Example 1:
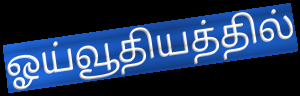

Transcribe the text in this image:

ஓய்வூதியத்தில்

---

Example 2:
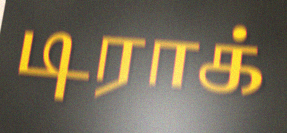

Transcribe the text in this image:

டிராக்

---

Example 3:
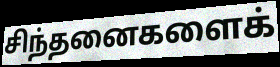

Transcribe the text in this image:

சிந்தனைகளைக்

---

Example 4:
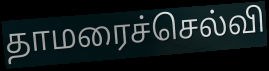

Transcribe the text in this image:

தாமரைச்செல்வி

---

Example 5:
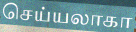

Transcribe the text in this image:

செய்யலாகா